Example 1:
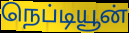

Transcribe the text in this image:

நெப்டியூன்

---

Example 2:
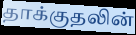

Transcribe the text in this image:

தாக்குதலின்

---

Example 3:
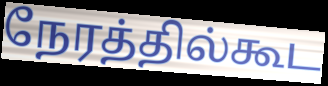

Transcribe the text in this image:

நேரத்தில்கூட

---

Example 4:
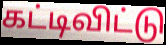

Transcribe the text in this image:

கட்டிவிட்டு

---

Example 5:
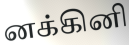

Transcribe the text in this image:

னக்கினி